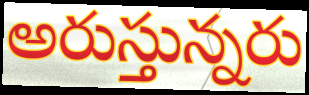
అరుస్తున్నరు